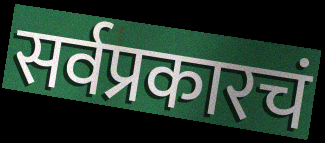
सर्वप्रकारचं